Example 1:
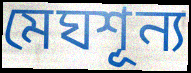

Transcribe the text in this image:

মেঘশূন্য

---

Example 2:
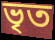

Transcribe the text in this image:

ভৃত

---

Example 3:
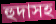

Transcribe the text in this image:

হুদাসহ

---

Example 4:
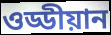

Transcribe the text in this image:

ওড্ডীয়ান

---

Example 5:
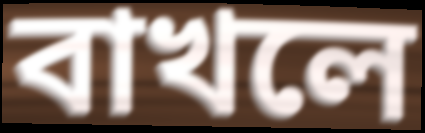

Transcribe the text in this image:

বাখলে